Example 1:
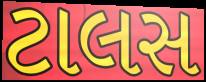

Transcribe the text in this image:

ટાલસ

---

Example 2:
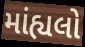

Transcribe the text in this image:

માંહ્યલો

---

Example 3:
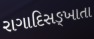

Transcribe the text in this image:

રાગાદિસઙ્ખાતા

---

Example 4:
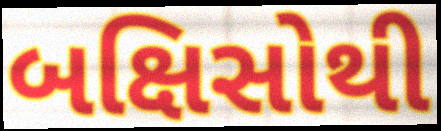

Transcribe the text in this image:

બક્ષિસોથી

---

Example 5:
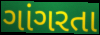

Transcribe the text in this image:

ગાંગરતા